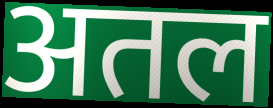
अतल